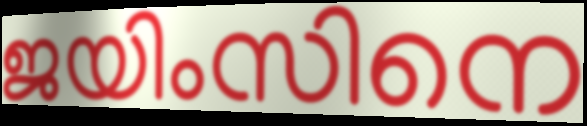
ജയിംസിനെ